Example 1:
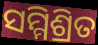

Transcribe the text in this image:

ସମ୍ମିଶ୍ରିତ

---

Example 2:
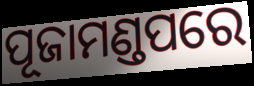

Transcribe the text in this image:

ପୂଜାମଣ୍ଡପରେ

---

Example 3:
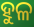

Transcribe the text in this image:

ହୁଳ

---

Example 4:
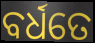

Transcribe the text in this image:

ବର୍ଧତେ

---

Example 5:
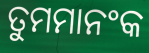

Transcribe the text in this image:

ତୁମମାନଂକ